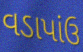
વડાપાંઉ